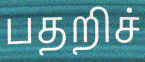
பதறிச்